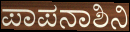
ಪಾಪನಾಶಿನಿ